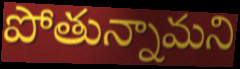
పోతున్నామని